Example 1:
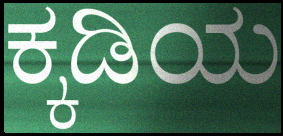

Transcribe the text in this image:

ಕ್ಕಡಿಯ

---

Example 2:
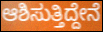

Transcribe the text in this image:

ಆಶಿಸುತ್ತಿದ್ದೇನೆ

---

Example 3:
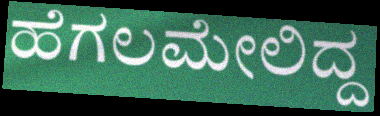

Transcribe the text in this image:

ಹೆಗಲಮೇಲಿದ್ದ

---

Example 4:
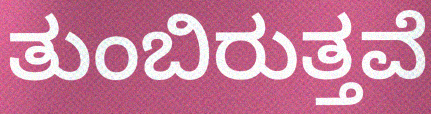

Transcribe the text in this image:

ತುಂಬಿರುತ್ತವೆ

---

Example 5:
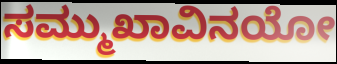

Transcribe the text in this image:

ಸಮ್ಮುಖಾವಿನಯೋ